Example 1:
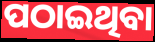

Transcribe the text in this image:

ପଠାଇଥିବା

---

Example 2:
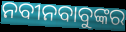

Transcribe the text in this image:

ନବୀନବାବୁଙ୍କର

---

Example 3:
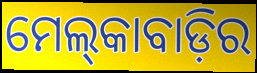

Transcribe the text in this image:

ମେଲ୍‌କାବାଡ଼ିର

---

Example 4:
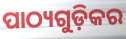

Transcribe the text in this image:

ପାଠ୍ୟଗୁଡ଼ିକର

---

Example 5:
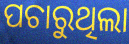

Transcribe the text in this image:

ପଚାରୁଥିଲା